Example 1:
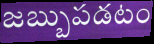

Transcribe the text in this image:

జబ్బుపడటం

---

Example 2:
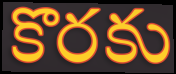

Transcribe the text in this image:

కొరకు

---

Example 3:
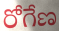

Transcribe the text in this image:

రోగేణ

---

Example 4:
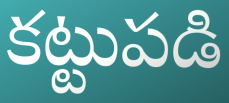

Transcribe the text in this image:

కట్టుపడి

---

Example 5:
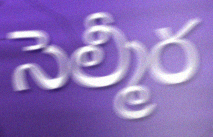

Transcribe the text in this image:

సెల్మీర